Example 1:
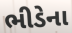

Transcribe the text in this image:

ભીડેના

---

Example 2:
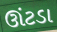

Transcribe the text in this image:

ઊંટડા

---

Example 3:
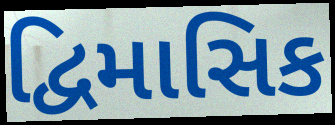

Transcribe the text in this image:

દ્વિમાસિક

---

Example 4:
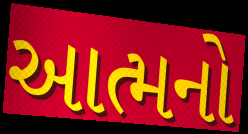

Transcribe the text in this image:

આત્મનો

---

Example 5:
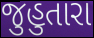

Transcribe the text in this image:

જુહુતારા